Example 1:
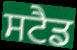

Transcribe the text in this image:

ਸਟੈਡ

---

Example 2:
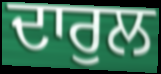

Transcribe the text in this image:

ਦਾਰੁਲ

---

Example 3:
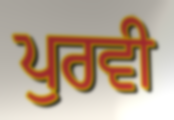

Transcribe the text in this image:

ਪੁਰਵੀ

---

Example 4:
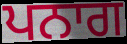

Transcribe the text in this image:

ਪਨਾਗ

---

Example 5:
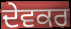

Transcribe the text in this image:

ਦੇਵਕਰ